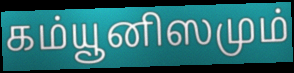
கம்யூனிஸமும்